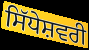
ਸਿੱਧੇਸ਼ਵਰੀ